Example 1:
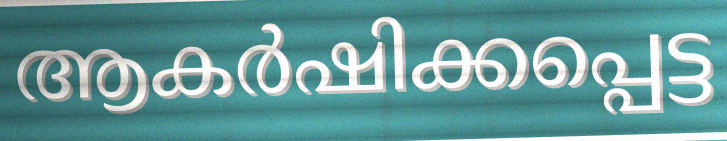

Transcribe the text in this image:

ആകർഷിക്കപ്പെട്ട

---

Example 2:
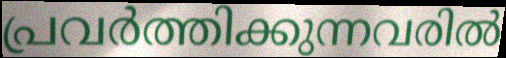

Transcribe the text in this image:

പ്രവർത്തിക്കുന്നവരിൽ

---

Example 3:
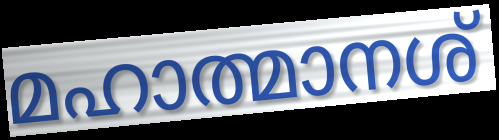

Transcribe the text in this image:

മഹാത്മാനശ്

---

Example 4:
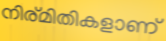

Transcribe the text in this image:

നിര്മിതികളാണ്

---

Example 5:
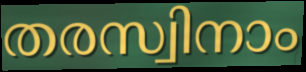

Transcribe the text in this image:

തരസ്വിനാം